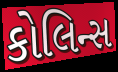
કોલિન્સ